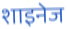
शाइनेज